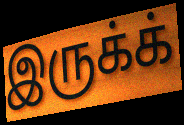
இருக்க்